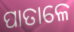
ପାତାଳେ